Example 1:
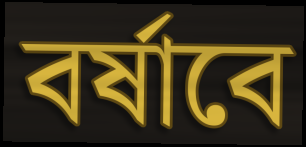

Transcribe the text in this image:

বর্ষাবে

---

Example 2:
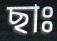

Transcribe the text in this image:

ছাঃ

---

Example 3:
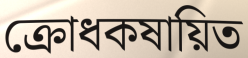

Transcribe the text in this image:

ক্রোধকষায়িত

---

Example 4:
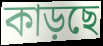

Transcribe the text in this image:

কাড়ছে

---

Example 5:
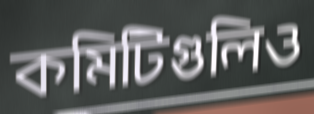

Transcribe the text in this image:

কমিটিগুলিও